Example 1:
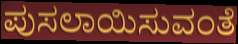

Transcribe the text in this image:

ಪುಸಲಾಯಿಸುವಂತೆ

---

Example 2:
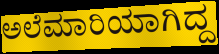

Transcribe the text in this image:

ಅಲೆಮಾರಿಯಾಗಿದ್ದ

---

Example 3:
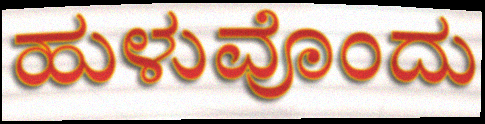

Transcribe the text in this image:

ಹುಳುವೊಂದು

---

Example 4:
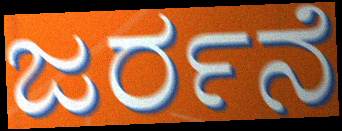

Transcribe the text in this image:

ಜರ್ರನೆ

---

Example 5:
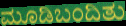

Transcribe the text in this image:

ಮೂಡಿಬಂದಿತು